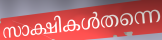
സാക്ഷികൾതന്നെ